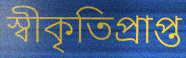
স্বীকৃতিপ্ৰাপ্ত